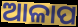
ଆଳାପ